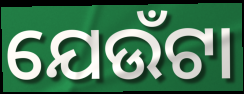
ଯେଉଁଟା